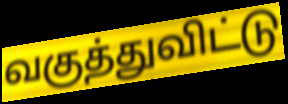
வகுத்துவிட்டு